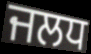
ਜਲਧ